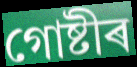
গোষ্টীৰ